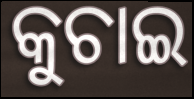
କୁଚାଇ